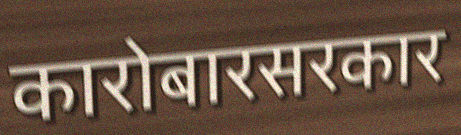
कारोबारसरकार